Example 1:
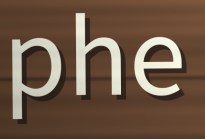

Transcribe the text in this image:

phe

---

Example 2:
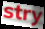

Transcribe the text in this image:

stry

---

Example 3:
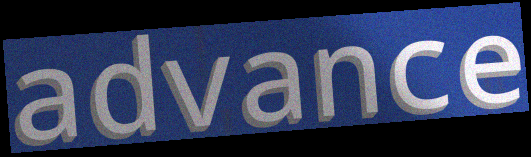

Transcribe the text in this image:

advance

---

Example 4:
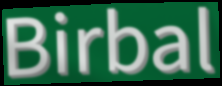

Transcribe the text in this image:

Birbal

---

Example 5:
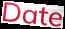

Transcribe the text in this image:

Date